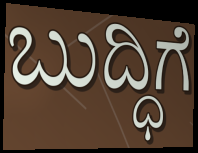
ಬುದ್ಧಿಗೆ